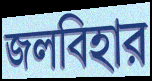
জলবিহার